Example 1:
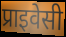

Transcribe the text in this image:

प्राइवेसी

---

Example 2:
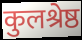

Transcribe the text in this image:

कुलश्रेष्ठ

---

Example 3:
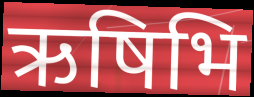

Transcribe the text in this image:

ऋषिभि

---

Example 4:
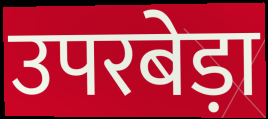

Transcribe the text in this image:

उपरबेड़ा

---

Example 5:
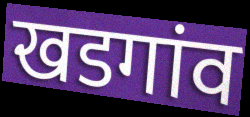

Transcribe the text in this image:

खडगांव